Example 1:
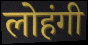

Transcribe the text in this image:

लोहंगी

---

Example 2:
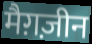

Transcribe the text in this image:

मैग़ज़ीन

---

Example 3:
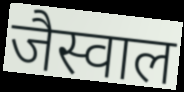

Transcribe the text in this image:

जैस्वाल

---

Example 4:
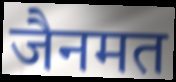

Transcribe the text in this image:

जैनमत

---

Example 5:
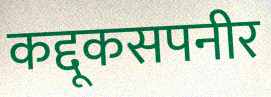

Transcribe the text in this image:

कद्दूकसपनीर